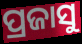
ପ୍ରଜାସୁ